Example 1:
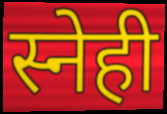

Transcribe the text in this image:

स्नेही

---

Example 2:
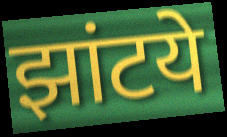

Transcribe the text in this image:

झांटये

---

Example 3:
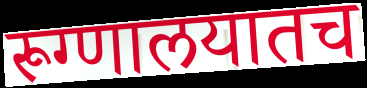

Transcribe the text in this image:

रूग्णालयातच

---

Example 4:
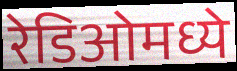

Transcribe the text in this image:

रेडिओमध्ये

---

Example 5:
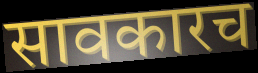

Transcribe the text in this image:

सावकारच